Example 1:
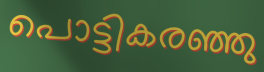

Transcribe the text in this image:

പൊട്ടികരഞ്ഞു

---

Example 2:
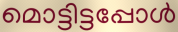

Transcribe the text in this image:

മൊട്ടിട്ടപ്പോൾ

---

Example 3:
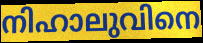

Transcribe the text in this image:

നിഹാലുവിനെ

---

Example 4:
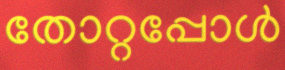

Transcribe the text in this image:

തോറ്റപ്പോൾ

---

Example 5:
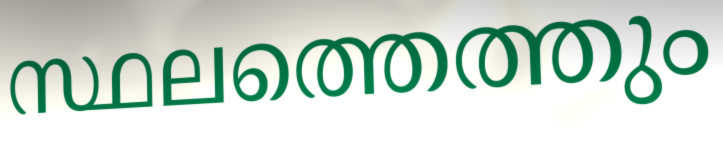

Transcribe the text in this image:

സ്ഥലത്തെത്തും